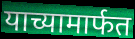
याच्यामार्फत